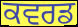
ਕਵਰਡ